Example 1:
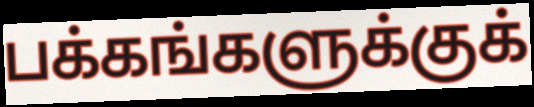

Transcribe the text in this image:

பக்கங்களுக்குக்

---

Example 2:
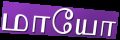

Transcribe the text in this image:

மாயோ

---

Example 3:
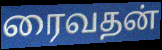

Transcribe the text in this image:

ரைவதன்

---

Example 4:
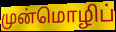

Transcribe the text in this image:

முன்மொழிப்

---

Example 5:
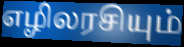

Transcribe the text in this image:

எழிலரசியும்